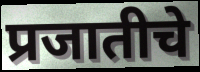
प्रजातीचे